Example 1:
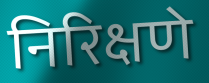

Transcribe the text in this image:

निरिक्षणे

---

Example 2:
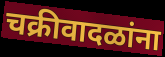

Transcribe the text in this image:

चक्रीवादळांना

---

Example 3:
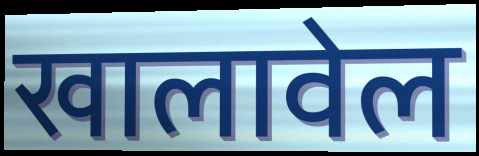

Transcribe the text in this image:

खालावेल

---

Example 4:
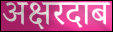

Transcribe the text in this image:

अक्षरदाब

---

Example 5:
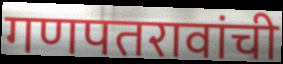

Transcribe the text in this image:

गणपतरावांची